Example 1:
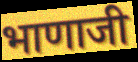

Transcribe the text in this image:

भाणाजी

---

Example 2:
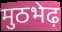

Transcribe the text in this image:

मुठभेढ़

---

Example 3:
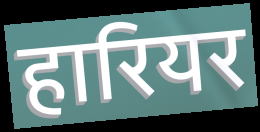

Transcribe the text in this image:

हारियर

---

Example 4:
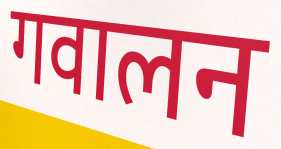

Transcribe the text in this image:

गवालन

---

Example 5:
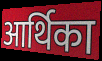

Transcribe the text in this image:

आर्थिका